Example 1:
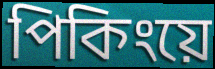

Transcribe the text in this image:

পিকিংয়ে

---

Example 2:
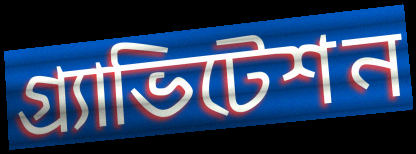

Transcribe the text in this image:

গ্র্যাভিটেশন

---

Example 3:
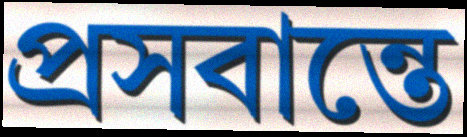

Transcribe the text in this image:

প্রসবান্তে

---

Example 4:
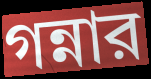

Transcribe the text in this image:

গন্নার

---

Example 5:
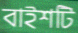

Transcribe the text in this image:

বাইশটি